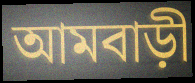
আমবাড়ী